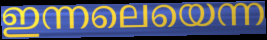
ഇന്നലെയെന്ന